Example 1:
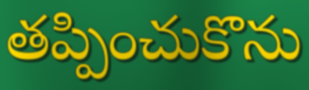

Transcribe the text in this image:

తప్పించుకొను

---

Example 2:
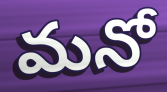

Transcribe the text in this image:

మనో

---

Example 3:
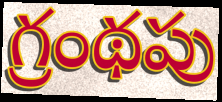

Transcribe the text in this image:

గ్రంథపు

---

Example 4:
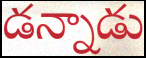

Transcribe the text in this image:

డన్నాడు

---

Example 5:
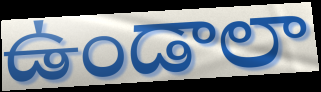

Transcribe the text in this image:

ఉండాలా